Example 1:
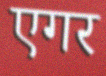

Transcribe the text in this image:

एगर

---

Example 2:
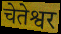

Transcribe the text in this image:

चेतेश्वर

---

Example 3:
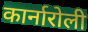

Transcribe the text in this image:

कार्नारोली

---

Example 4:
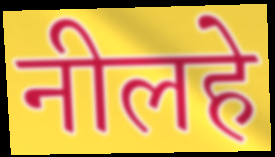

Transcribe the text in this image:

नीलहे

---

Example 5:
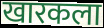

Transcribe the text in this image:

खारकला